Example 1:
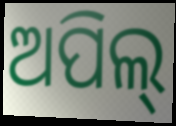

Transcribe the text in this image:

ଅପିଲ୍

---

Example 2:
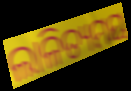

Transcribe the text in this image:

ଲାଳିତ୍ୟମୟ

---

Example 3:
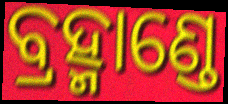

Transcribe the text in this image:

ବ୍ରହ୍ମାଣ୍ଡେ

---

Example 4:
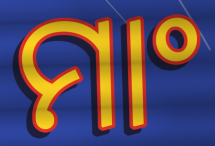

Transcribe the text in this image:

ମାଂ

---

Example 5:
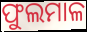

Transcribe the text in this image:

ଫୁଲମାଳ